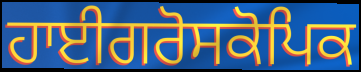
ਹਾਈਗਰੋਸਕੋਪਿਕ